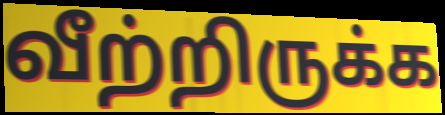
வீற்றிருக்க